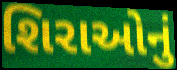
શિરાઓનું